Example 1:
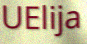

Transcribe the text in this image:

UElija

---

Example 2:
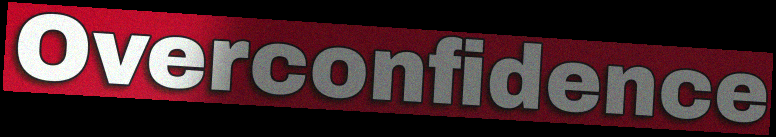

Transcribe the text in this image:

Overconfidence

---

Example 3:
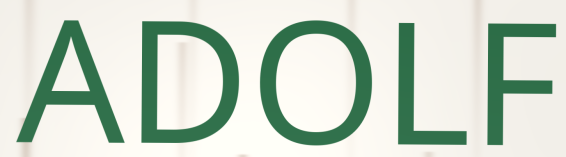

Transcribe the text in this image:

ADOLF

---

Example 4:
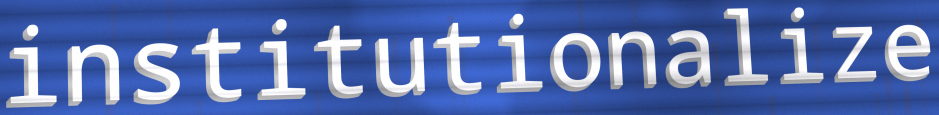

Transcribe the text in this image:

institutionalize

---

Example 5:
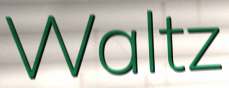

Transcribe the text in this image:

Waltz